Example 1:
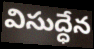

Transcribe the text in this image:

విసుద్ధేన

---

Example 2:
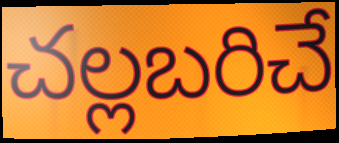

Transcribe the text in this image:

చల్లబరిచే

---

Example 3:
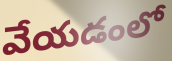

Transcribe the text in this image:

వేయడంలో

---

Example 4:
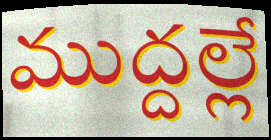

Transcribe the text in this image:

ముద్దల్లే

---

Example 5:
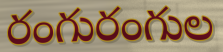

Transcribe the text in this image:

రంగురంగుల